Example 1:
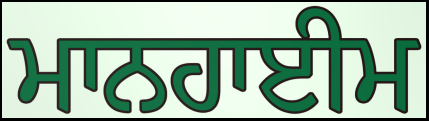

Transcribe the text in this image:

ਮਾਨਹਾਈਮ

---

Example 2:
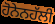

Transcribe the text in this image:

ਹੋਨੇਨਹੱਲੀ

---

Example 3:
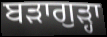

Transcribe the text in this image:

ਬੜਾਗੁੜ੍ਹਾ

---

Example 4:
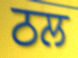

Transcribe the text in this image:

ਠਲ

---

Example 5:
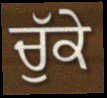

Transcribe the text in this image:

ਚੁੱਕੇ